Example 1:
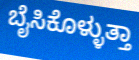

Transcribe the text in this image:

ಬೈಸಿಕೊಳ್ಳುತ್ತಾ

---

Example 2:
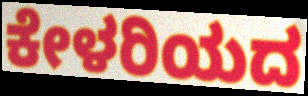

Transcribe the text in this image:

ಕೇಳರಿಯದ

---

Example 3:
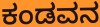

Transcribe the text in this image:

ಕಂಡವನ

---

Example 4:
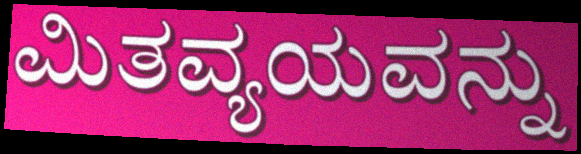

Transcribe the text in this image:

ಮಿತವ್ಯಯವನ್ನು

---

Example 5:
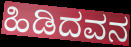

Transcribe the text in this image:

ಹಿಡಿದವನ